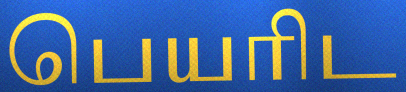
பெயரிட